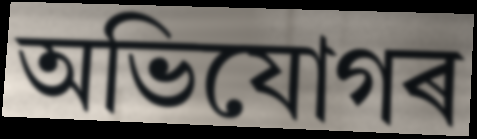
অভিযোগৰ